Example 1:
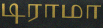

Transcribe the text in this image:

டிராமா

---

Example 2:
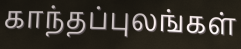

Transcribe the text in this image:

காந்தப்புலங்கள்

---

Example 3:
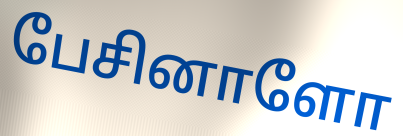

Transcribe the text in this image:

பேசினாளோ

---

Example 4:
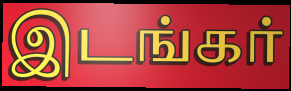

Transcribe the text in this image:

இடங்கர்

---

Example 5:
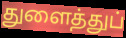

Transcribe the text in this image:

துளைத்துப்